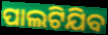
ପାଲଟିଯିବ